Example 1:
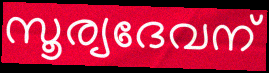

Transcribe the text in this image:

സൂര്യദേവന്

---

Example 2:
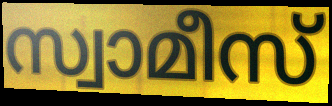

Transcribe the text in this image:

സ്വാമീസ്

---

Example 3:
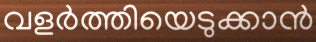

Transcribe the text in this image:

വളർത്തിയെടുക്കാൻ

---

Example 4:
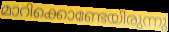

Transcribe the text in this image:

മാറിക്കൊണ്ടേയിരുന്നു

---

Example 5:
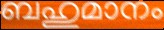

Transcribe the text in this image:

ബഹുമാനം